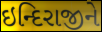
ઇન્દિરાજીને